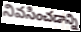
నివసించడాన్ని